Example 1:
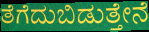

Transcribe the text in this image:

ತೆಗೆದುಬಿಡುತ್ತೇನೆ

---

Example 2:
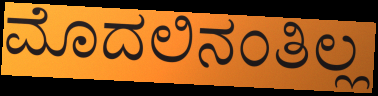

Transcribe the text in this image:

ಮೊದಲಿನಂತಿಲ್ಲ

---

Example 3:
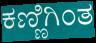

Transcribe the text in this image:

ಕಣ್ಣಿಗಿಂತ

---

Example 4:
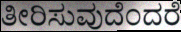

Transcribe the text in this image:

ತೀರಿಸುವುದೆಂದರೆ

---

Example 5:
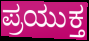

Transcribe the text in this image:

ಪ್ರಯುಕ್ತ